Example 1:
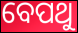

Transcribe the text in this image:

ବେପଥୁ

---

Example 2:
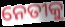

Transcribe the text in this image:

ନେତୀକୁ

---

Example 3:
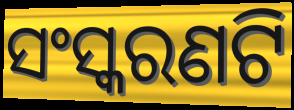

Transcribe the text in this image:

ସଂସ୍କରଣଟି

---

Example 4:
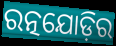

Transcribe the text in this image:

ରତ୍ନଯୋଡ଼ିର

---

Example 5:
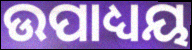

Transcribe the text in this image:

ଉପାଧ୍ୟୟ